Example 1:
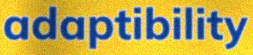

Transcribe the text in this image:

adaptibility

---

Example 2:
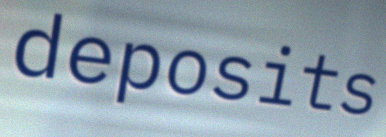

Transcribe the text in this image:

deposits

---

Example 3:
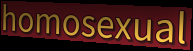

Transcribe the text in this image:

homosexual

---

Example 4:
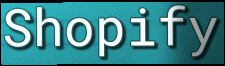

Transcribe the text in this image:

Shopify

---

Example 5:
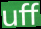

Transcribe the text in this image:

uff